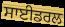
ਸਾਈਡਰਲ